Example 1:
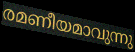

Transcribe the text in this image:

രമണീയമാവുന്നു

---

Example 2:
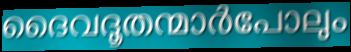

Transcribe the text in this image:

ദൈവദൂതന്മാർപോലും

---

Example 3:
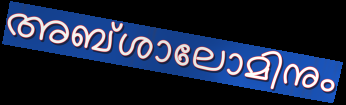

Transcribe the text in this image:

അബ്ശാലോമിനും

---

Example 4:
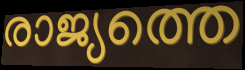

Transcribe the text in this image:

രാജ്യത്തെ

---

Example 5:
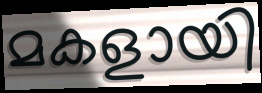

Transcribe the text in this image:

മകളായി